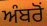
ਅੰਬਰੋਂ